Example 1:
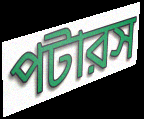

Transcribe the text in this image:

পটারস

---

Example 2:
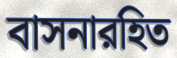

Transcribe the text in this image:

বাসনারহিত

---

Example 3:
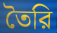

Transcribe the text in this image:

তৈরি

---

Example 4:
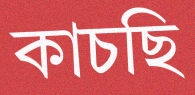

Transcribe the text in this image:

কাচছি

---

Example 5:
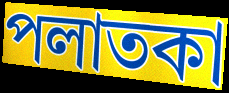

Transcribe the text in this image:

পলাতকা